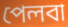
পেলবা